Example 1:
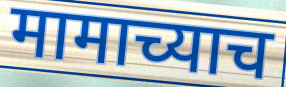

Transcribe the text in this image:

मामाच्याच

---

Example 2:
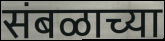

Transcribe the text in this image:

संबळाच्या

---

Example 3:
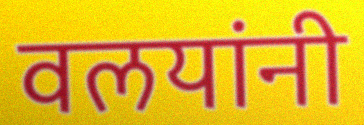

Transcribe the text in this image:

वलयांनी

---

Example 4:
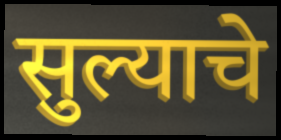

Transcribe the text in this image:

सुल्याचे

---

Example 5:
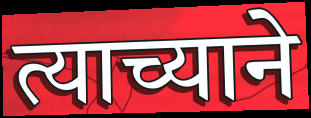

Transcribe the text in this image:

त्याच्याने